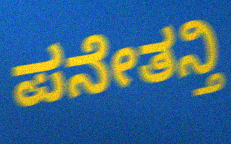
ಪನೇತನ್ತಿ